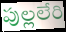
పుల్లలేరి